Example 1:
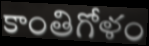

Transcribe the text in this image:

కాంతిగోళం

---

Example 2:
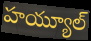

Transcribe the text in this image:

హయ్యూల్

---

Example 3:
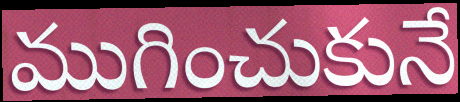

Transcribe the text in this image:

ముగించుకునే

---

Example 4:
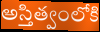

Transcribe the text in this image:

అస్తిత్వంలోకి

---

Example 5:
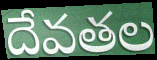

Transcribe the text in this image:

దేవతల